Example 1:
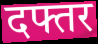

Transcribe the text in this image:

दफ्तर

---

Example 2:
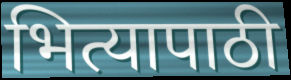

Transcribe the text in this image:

भित्यापाठी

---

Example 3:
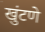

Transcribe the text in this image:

खुंटणे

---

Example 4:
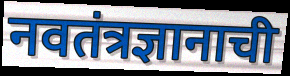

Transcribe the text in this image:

नवतंत्रज्ञानाची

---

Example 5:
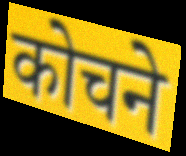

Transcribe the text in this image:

कोचने